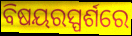
ବିଷୟରସ୍ପର୍ଶରେ